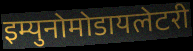
इम्युनोमोडायलेटरी